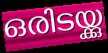
ഒരിടയ്ക്കു